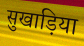
सुखाड़िया